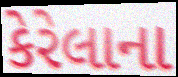
કેરેલાના